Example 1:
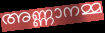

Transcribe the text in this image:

അണ്ണാനമ്മ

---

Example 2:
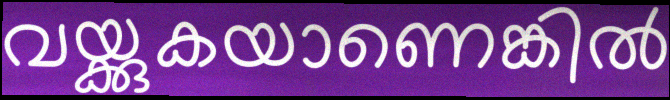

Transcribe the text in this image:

വയ്ക്കുകയാണെങ്കിൽ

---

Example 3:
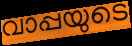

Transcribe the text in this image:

വാപ്പയുടെ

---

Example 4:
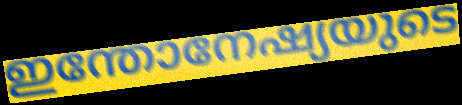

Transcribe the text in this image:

ഇന്തോനേഷ്യയുടെ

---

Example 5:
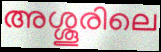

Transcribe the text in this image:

അശ്ശൂരിലെ